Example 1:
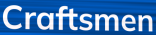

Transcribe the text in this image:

Craftsmen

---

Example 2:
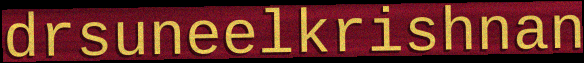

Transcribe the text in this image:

drsuneelkrishnan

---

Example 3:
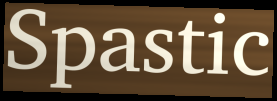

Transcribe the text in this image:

Spastic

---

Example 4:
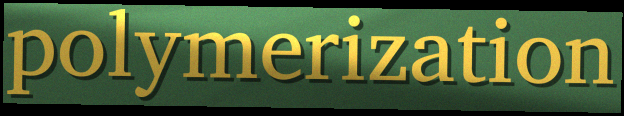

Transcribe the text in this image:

polymerization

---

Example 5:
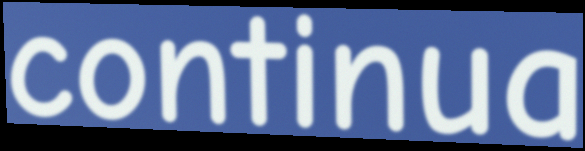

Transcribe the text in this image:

continua